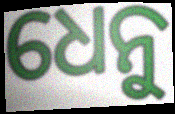
ଧେନୁ